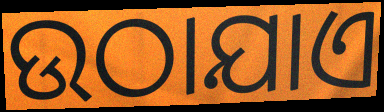
ଉଠାଯାଏ